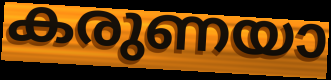
കരുണയാ